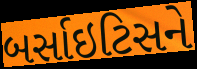
બર્સાઇટિસને